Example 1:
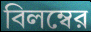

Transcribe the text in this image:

বিলম্বের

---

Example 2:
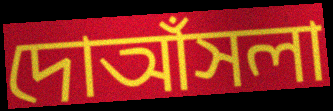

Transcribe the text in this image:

দোআঁসলা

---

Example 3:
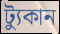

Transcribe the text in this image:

ট্যুকান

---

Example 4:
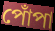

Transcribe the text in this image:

পোঁপা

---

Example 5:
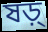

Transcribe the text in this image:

ষড়্